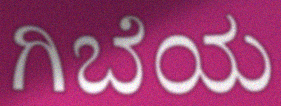
ಗಿಬೆಯ